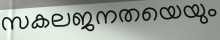
സകലജനതയെയും